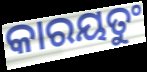
କାରୟତୁଂ